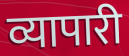
व्‍यापारी